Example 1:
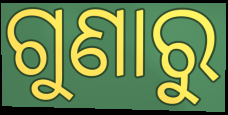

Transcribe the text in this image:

ଗୁଣାରୁ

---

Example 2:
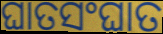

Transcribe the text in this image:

ଘାତସଂଘାତ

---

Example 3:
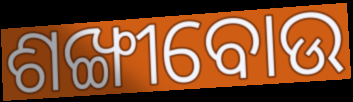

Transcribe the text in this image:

ଶଙ୍ଖୀବୋଉ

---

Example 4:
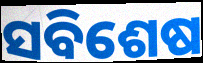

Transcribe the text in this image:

ସବିଶେଷ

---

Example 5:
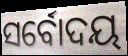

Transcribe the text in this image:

ସର୍ବୋଦୟ